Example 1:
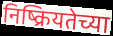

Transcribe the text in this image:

निष्क्रियतेच्या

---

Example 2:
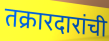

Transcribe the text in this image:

तक्रारदारांची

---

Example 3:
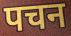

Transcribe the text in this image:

पचन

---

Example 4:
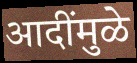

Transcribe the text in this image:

आदींमुळे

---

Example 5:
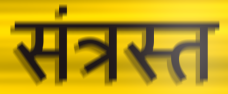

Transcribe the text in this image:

संत्रस्त